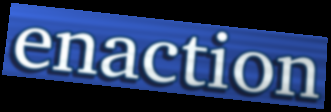
enaction